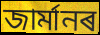
জাৰ্মানৰ